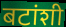
बटांशी